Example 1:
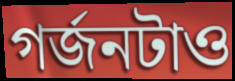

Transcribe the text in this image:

গর্জনটাও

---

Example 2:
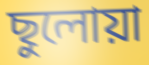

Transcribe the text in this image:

ছুলোয়া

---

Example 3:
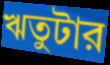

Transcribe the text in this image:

ঋতুটার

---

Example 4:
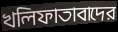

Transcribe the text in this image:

খলিফাতাবাদের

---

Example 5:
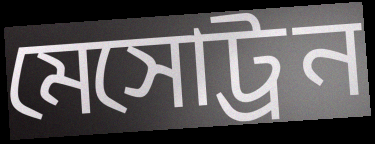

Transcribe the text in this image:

মেসোট্রন